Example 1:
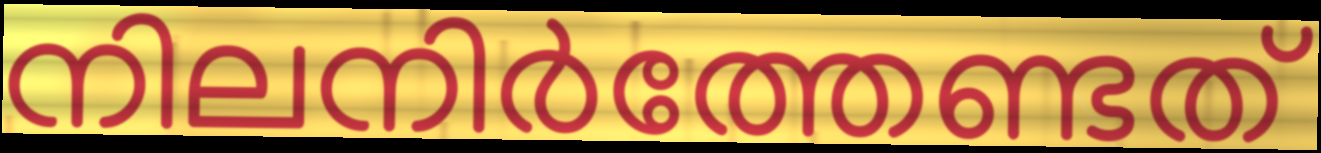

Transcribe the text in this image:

നിലനിർത്തേണ്ടത്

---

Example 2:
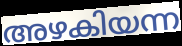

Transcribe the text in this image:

അഴകിയന്ന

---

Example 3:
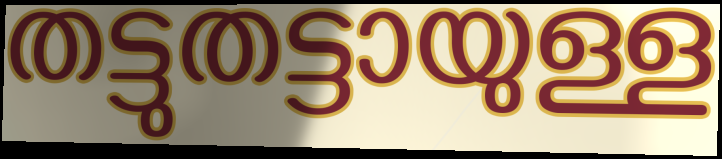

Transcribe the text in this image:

തട്ടുതട്ടായുള്ള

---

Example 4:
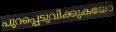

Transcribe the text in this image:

പുറപ്പെടുവിക്കുകയോ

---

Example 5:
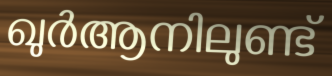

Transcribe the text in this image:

ഖുർആനിലുണ്ട്